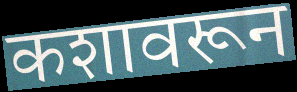
कशावरून